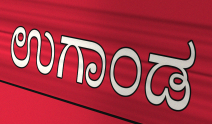
ಉಗಾಂಡ